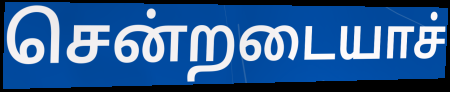
சென்றடையாச்